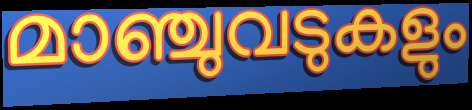
മാഞ്ചുവടുകളും